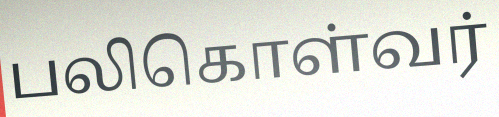
பலிகொள்வர்